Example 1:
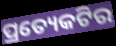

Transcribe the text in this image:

ପ୍ରତ୍ୟେକଟିର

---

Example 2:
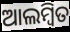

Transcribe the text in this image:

ଆଲମ୍ୱିତ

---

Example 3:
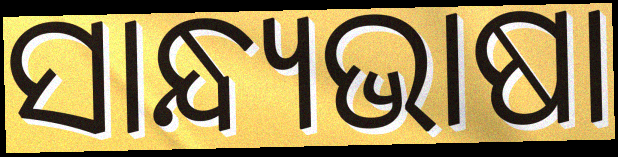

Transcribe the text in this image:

ସାନ୍ଧ୍ୟଭାଷା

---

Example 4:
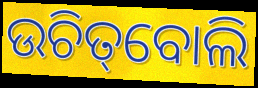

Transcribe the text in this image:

ଉଚିତ୍‌ବୋଲି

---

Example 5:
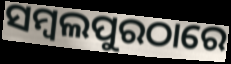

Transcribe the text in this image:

ସମ୍ବଲପୁରଠାରେ